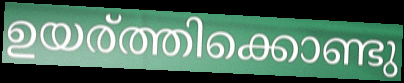
ഉയര്ത്തിക്കൊണ്ടു